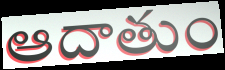
ఆదాతుం